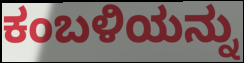
ಕಂಬಳಿಯನ್ನು